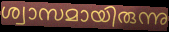
ശ്വാസമായിരുന്നു